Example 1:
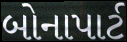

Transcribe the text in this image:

બોનાપાર્ટ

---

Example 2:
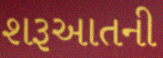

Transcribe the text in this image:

શરૂઆતની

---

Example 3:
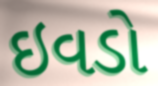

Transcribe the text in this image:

ઇવડો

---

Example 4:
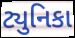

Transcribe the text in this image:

ટ્યુનિકા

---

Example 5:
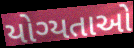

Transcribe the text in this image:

યોગ્યતાઓ